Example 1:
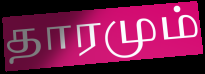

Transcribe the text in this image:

தாரமும்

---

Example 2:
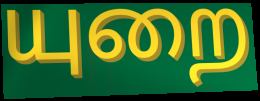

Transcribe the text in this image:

யுறை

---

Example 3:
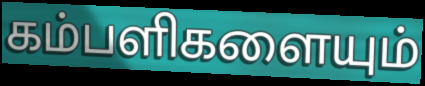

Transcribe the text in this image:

கம்பளிகளையும்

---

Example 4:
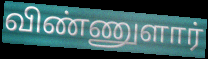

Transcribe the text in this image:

விண்ணுளார்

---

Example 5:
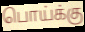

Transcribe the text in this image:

பொய்க்கு